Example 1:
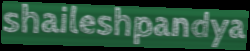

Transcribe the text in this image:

shaileshpandya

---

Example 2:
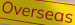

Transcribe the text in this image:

Overseas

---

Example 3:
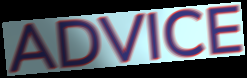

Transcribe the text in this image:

ADVICE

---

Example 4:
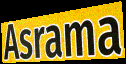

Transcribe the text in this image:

Asrama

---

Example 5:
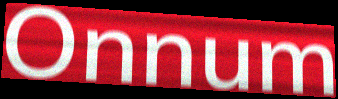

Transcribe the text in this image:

Onnum